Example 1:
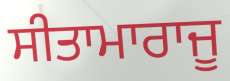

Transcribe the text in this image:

ਸੀਤਾਮਾਰਾਜੂ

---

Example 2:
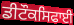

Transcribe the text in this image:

ਡੀਟੌਕਸਿਫਾਈ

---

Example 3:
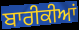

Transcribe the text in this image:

ਬਾਰੀਕੀਆਂ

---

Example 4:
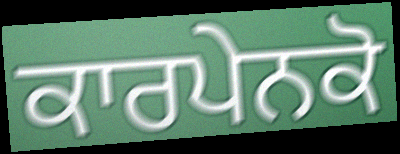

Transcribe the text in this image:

ਕਾਰਪੇਨਕੋ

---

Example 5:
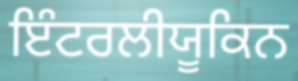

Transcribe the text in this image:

ਇੰਟਰਲੀਯੂਕਿਨ